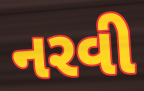
નરવી